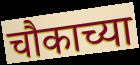
चौकाच्या